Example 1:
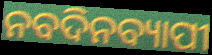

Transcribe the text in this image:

ନବଦିନବ୍ୟାପୀ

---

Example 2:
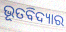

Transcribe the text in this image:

ଭୂତବିଦ୍ୟାର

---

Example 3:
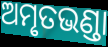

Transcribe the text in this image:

ଅମୃତଭଣ୍ଡା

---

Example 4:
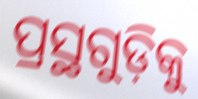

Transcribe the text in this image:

ପ୍ରସ୍ଥଗୁଡ଼ିକୁ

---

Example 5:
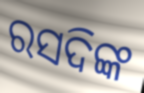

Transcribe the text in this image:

ରସଦିଙ୍କ